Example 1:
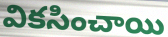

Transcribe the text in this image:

వికసించాయి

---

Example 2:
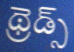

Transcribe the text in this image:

థ్రెడ్స్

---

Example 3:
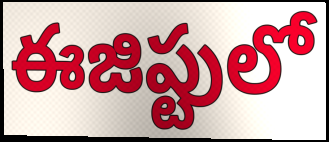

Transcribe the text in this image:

ఈజిప్టులో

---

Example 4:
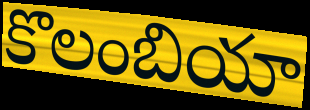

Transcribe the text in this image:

కొలంబియా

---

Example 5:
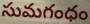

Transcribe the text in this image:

సుమగంధం